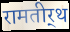
रामतीर्थ